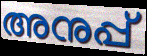
അനുപ്പ്